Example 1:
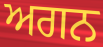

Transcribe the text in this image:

ਅਗਨ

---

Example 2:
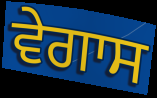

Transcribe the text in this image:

ਵੇਗਾਸ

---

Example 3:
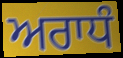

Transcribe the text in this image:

ਅਰਾਧੰ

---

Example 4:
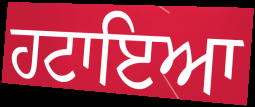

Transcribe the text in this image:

ਹਟਾਇਆ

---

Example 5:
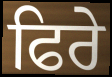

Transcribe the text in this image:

ਫਿਰੇ